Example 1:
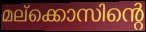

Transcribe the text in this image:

മല്ക്കൊസിന്റെ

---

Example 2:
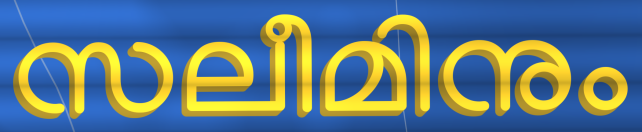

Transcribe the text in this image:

സലീമിനും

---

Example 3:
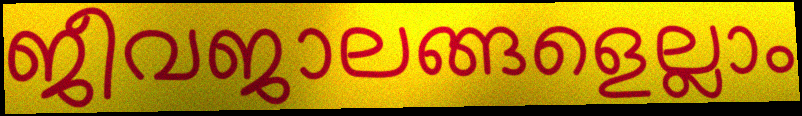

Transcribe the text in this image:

ജീവജാലങ്ങളെല്ലാം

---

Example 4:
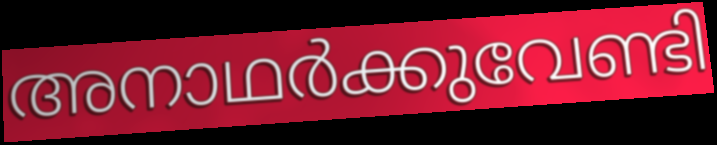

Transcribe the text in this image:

അനാഥർക്കുവേണ്ടി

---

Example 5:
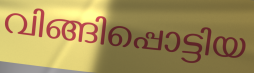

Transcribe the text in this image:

വിങ്ങിപ്പൊട്ടിയ